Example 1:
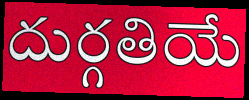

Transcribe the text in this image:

దుర్గతియే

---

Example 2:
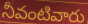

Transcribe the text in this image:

నీవంటివారు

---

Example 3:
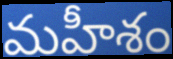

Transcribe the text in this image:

మహీశం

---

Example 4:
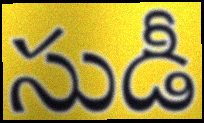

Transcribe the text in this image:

సుడీ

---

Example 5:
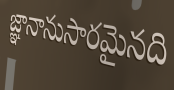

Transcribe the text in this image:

జ్ఞానానుసారమైనది